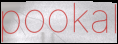
pookal